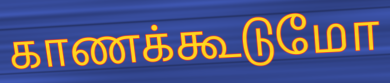
காணக்கூடுமோ